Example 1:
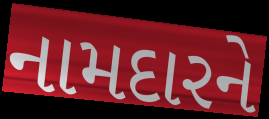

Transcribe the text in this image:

નામદારને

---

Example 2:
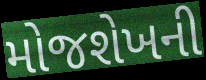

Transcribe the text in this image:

મોજશેખની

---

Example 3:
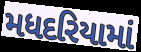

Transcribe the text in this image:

મધદરિયામાં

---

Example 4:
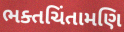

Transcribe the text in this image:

ભક્તચિંતામણિ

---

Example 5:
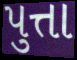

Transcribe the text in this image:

પુત્તા